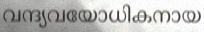
വന്ദ്യവയോധികനായ